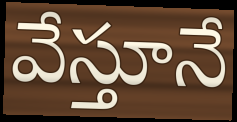
వేస్తూనే